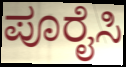
ಪೂರೈಸಿ